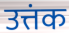
उत्तंक